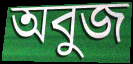
অবুজ